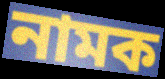
নামক